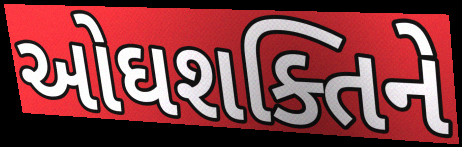
ઓઘશક્તિને